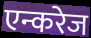
एन्करेज